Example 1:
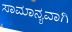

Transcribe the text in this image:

ಸಾಮಾನ್ಯವಾಗಿ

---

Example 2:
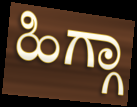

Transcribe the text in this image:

ಹಿಗ್ಗಾ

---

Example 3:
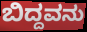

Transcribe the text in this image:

ಬಿದ್ದವನು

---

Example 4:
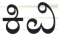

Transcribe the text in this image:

ಕಿವಿ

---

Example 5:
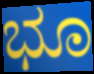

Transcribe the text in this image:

ಭೂ